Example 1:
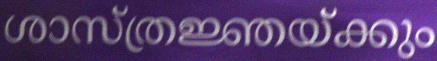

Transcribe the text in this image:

ശാസ്ത്രജ്ഞയ്ക്കും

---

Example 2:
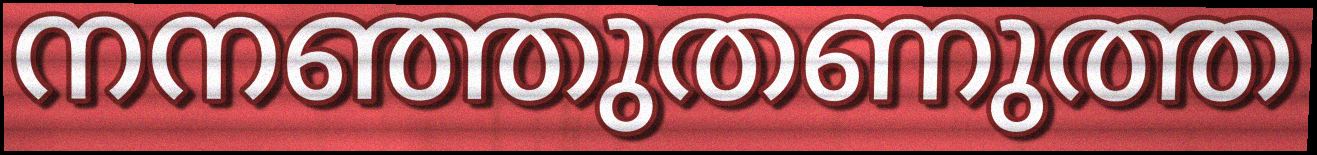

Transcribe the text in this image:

നനഞ്ഞുതണുത്ത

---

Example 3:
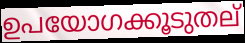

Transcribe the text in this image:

ഉപയോഗക്കൂടുതല്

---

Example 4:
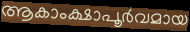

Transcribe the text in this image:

ആകാംക്ഷാപൂർവമായ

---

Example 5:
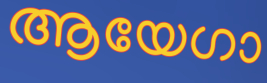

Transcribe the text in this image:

ആയേഗാ